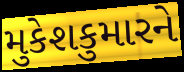
મુકેશકુમારને